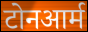
टोनआर्म